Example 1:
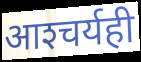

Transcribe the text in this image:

आश्‍चर्यही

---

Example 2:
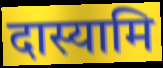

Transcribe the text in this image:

दास्यामि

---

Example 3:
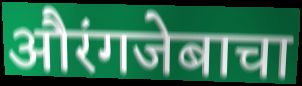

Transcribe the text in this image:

औरंगजेबाचा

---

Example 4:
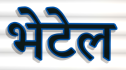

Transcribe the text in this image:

भेटेल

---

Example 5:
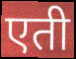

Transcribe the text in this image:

एती